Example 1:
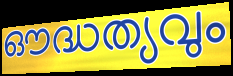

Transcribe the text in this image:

ഔദ്ധത്യവും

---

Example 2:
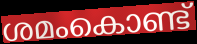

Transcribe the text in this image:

ശമംകൊണ്ട്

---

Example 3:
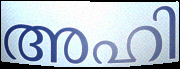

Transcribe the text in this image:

അഹി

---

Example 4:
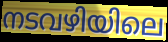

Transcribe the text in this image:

നടവഴിയിലെ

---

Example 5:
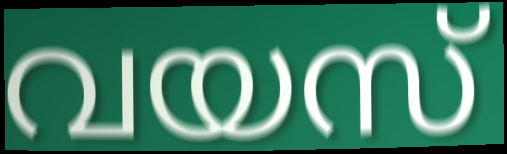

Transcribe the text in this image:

വയസ്